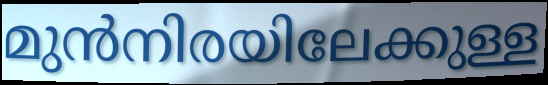
മുൻനിരയിലേക്കുള്ള